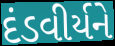
દંડવીર્યને